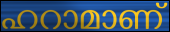
ഹറാമാണ്